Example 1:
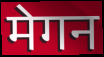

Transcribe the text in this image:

मेगन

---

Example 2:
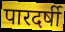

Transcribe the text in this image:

पारदर्षी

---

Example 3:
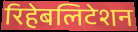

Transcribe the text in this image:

रिहेबलिटेशन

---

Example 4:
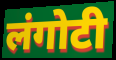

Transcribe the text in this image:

लंगोटी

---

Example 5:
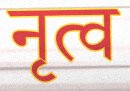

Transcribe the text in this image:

नृत्व